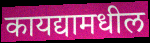
कायद्यामधील